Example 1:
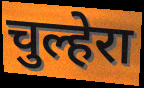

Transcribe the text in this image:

चुल्हेरा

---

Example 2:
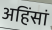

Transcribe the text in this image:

अहिंसां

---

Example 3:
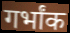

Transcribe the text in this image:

गर्भांक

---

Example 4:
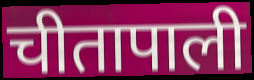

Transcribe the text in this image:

चीतापाली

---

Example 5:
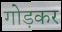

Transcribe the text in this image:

गोड़कर